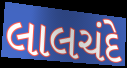
લાલચંદે